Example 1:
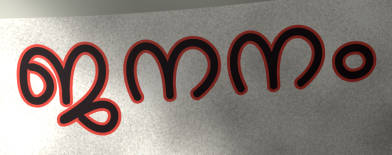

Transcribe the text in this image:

ജനനം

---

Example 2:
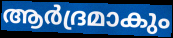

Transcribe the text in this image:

ആർദ്രമാകും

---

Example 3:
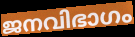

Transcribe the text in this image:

ജനവിഭാഗം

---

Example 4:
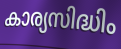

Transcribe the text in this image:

കാര്യസിദ്ധിം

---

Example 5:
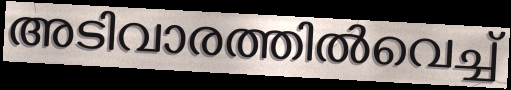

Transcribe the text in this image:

അടിവാരത്തിൽവെച്ച്